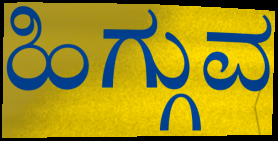
ಹಿಗ್ಗುವ